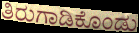
ತಿರುಗಾಡಿಕೊಂಡು